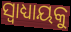
ସ୍ୱାଧ୍ୟାୟକୁ